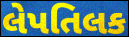
લેપતિલક